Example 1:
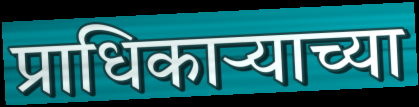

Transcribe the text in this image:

प्राधिकाऱ्याच्या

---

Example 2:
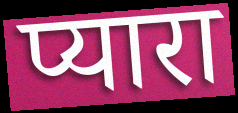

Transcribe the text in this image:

प्यारा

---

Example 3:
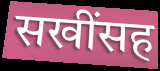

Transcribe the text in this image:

सखींसह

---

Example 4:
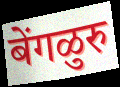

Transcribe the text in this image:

बेंगळुरु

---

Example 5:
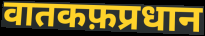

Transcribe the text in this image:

वातकफ़प्रधान